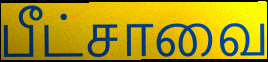
பீட்சாவை